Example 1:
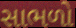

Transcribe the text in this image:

સાભળો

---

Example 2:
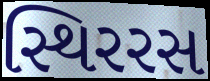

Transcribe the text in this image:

સ્થિરરસ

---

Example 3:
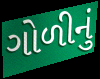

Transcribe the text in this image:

ગોળીનું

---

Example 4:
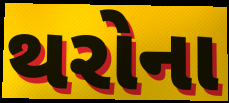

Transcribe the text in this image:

થરોના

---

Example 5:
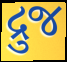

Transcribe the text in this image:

દ્રુજ